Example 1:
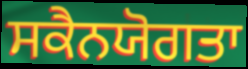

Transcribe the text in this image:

ਸਕੈਨਯੋਗਤਾ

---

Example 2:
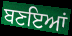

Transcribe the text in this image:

ਬਣਇਆਂ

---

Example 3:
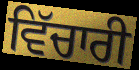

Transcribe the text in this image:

ਵਿੱਚਾਰੀ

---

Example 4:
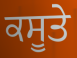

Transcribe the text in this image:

ਕਸੂਤੇ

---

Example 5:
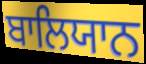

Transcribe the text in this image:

ਬਾਲਿਯਾਨ